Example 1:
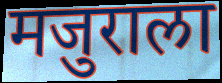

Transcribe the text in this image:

मजुराला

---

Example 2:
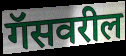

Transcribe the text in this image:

गॅसवरील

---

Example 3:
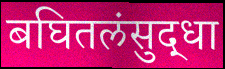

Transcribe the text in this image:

बघितलंसुद्धा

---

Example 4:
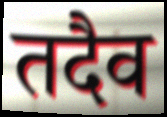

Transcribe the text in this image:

तदैव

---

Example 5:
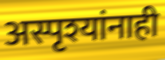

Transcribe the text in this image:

अस्पृश्यांनाही